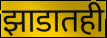
झाडातही